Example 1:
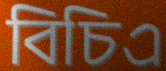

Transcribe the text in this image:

বিচিএ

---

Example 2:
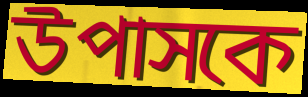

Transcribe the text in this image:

উপাসকে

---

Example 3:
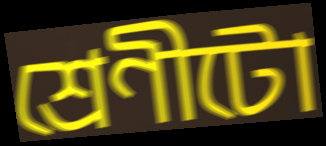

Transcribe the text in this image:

শ্ৰেণীটো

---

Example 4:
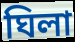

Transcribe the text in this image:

ঘিলা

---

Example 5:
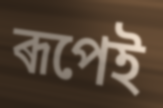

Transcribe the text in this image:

ৰূপেই